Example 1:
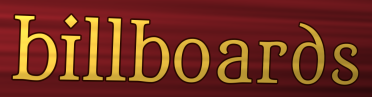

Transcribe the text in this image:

billboards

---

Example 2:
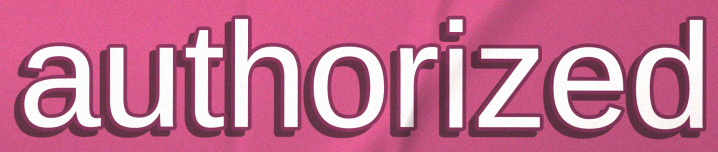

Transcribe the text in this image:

authorized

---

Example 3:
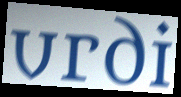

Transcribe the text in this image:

urdi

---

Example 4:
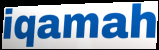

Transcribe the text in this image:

iqamah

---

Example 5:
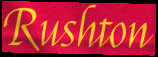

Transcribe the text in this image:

Rushton